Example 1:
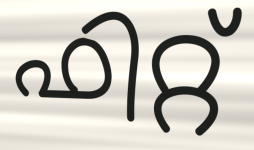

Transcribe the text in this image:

ഫിറ്റ്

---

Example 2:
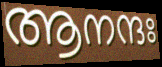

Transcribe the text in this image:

ആനന്ദഃ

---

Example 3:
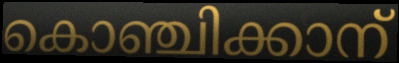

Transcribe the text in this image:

കൊഞ്ചിക്കാന്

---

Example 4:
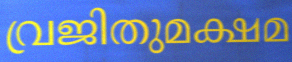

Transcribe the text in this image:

വ്രജിതുമക്ഷമ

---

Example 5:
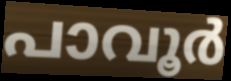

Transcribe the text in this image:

പാവൂർ